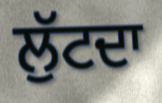
ਲੁੱਟਦਾ